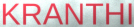
KRANTHI